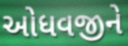
ઓધવજીને